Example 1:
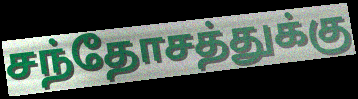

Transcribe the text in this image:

சந்தோசத்துக்கு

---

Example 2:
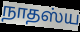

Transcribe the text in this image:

நாதஸ்ய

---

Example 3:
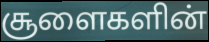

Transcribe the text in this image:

சூளைகளின்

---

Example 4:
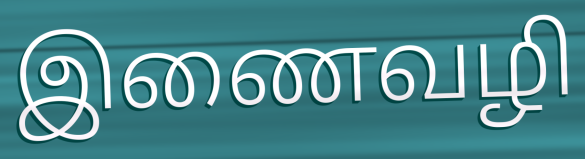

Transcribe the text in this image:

இணைவழி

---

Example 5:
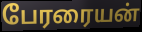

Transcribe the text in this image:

பேரரையன்